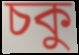
চকু